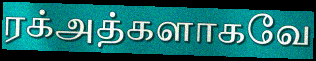
ரக்அத்களாகவே